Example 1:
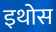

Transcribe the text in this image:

इथोस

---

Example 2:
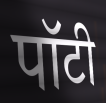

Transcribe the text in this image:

पॉटी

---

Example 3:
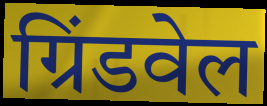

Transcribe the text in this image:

ग्रिंडवेल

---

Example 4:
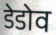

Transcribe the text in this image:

डेडोव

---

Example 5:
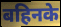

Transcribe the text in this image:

बहिनके